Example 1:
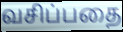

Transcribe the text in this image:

வசிப்பதை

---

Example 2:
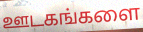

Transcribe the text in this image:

ஊடகங்களை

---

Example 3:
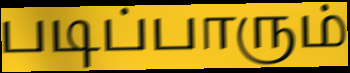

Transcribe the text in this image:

படிப்பாரும்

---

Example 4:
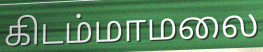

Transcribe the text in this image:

கிடம்மாமலை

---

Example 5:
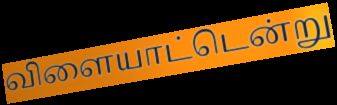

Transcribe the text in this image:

விளையாட்டென்று